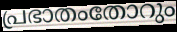
പ്രഭാതംതോറും